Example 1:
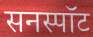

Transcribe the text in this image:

सनस्पॉट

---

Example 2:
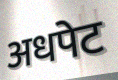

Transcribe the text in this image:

अधपेट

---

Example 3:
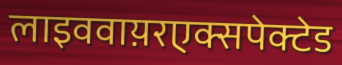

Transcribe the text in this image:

लाइववाय़रएक्सपेक्टेड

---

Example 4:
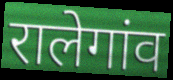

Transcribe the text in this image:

रालेगांव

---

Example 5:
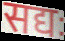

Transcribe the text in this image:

सद्यः